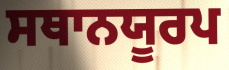
ਸਥਾਨਯੂਰਪ